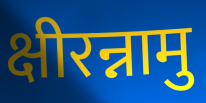
क्षीरन्नामु